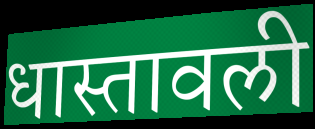
धास्तावली